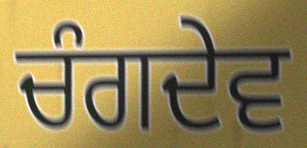
ਚੰਗਦੇਵ